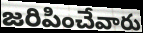
జరిపించేవారు